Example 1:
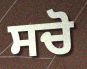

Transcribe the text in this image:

ਸਚੋ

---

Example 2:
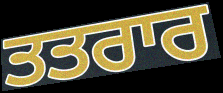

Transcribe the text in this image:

ਤਤਰਾਰ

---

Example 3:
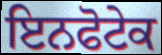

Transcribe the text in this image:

ਇਨਫੋਟੇਕ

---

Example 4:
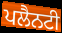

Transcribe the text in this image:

ਪਲੈਨਟੀ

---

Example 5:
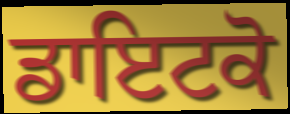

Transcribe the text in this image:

ਡਾਇਟਕੋ